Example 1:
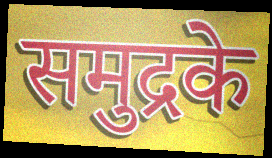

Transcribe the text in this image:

समुद्रके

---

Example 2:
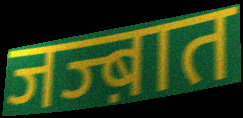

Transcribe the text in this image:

जज्ब़ात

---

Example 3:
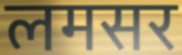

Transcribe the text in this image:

लमसर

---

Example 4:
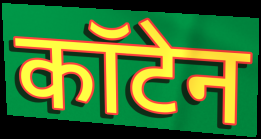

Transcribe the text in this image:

कॉटेन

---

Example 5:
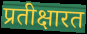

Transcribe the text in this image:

प्रतीक्षारत